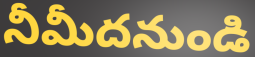
నీమీదనుండి